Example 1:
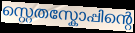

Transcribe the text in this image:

സ്റ്റെതസ്കോപ്പിന്റെ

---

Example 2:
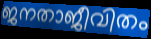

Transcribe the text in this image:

ജനതാജീവിതം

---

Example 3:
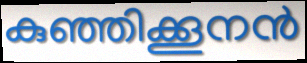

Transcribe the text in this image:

കുഞ്ഞിക്കൂനൻ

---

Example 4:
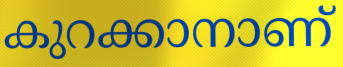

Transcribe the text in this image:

കുറക്കാനാണ്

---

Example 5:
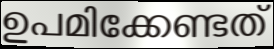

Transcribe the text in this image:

ഉപമിക്കേണ്ടത്